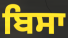
ਬਿਸਾ